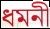
ধমনী